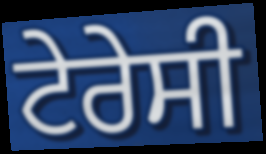
ਟੇਰੇਸੀ